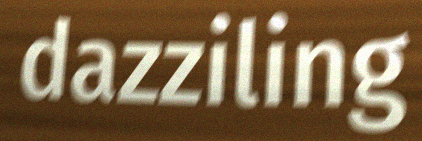
dazziling